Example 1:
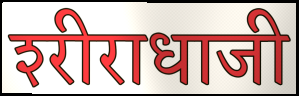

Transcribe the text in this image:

श्रीराधाजी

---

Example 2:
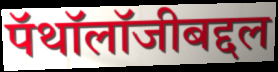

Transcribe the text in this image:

पॅथॉलॉजीबद्दल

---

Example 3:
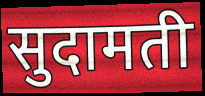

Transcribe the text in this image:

सुदामती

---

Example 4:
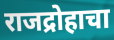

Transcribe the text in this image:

राजद्रोहाचा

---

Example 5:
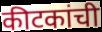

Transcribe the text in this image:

कीटकांची